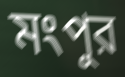
মংপুর